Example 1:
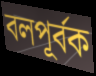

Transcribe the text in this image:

বলপূর্বক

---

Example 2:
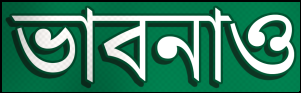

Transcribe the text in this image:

ভাবনাও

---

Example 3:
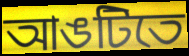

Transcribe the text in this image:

আঙটিতে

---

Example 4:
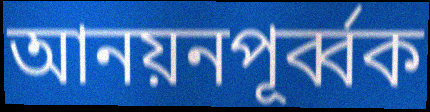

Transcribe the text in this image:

আনয়নপূর্ব্বক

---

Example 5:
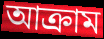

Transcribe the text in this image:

আক্রাম